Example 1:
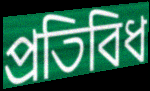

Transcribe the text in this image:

প্ৰতিবিধ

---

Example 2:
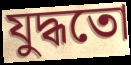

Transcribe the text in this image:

যুদ্ধতো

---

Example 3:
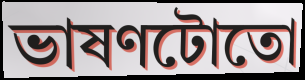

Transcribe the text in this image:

ভাষণটোতো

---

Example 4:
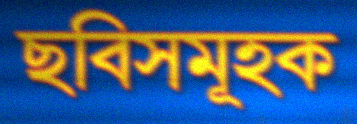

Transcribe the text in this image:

ছবিসমূহক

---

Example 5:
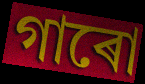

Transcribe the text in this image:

গাৰো